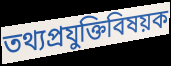
তথ্যপ্রযুক্তিবিষয়ক